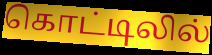
கொட்டிலில்